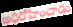
అధిరోహించాడు